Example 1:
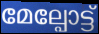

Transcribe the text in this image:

മേല്പോട്ട്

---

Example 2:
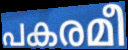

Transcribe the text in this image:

പകരമീ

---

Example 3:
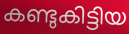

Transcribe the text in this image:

കണ്ടുകിട്ടിയ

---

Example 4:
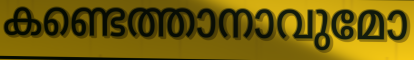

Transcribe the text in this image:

കണ്ടെത്താനാവുമോ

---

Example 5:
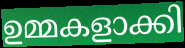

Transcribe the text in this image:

ഉമ്മകളാക്കി